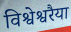
विश्वेश्वरैया